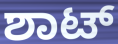
ಶಾಟ್